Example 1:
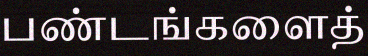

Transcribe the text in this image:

பண்டங்களைத்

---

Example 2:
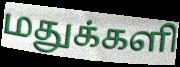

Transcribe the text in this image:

மதுக்களி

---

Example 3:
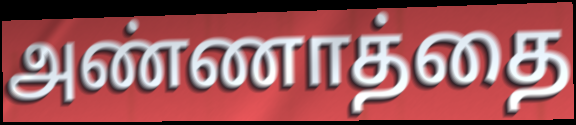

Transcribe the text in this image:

அண்ணாத்தை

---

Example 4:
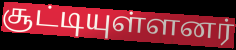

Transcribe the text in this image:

சூட்டியுள்ளனர்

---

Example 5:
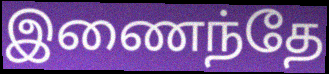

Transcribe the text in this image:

இணைந்தே